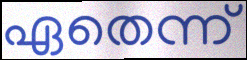
ഏതെന്ന്